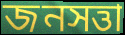
জনসত্তা